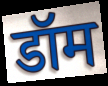
डॉम